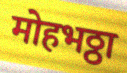
मोहभठ्ठा